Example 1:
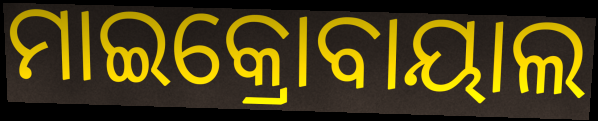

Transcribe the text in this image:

ମାଇକ୍ରୋବାୟାଲ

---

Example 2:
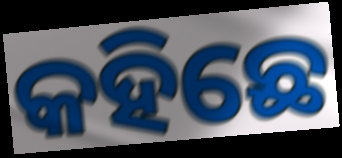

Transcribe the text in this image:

କହିଛେ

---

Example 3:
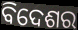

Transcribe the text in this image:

ବିଦେଶର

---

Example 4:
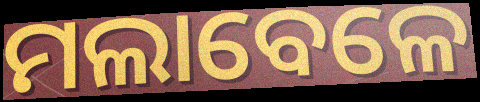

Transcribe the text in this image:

ମଲାବେଳେ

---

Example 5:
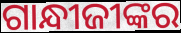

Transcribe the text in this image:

ଗାନ୍ଧୀଜୀଙ୍କର